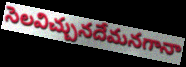
సెలవిచ్చునదేమనగానా